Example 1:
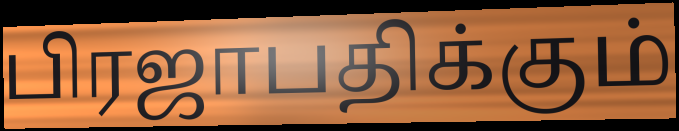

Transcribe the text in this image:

பிரஜாபதிக்கும்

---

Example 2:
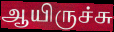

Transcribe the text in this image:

ஆயிருச்சு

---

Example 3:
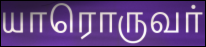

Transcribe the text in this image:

யாரொருவர்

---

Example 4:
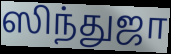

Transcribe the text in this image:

ஸிந்துஜா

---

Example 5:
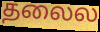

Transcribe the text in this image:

தலைல